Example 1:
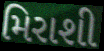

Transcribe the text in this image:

મિરાશી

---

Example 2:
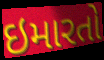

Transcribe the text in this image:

ઇમારતો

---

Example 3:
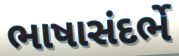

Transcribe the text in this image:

ભાષાસંદર્ભે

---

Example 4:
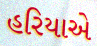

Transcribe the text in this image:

હરિયાએ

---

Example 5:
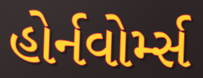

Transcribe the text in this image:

હોર્નવોર્મ્સ